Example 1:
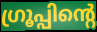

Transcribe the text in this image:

ഗ്രൂപ്പിന്റെ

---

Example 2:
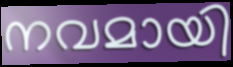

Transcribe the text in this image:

നവമായി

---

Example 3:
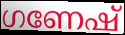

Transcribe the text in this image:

ഗണേഷ്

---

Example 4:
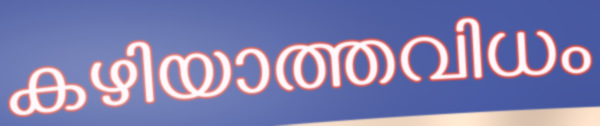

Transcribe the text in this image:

കഴിയാത്തവിധം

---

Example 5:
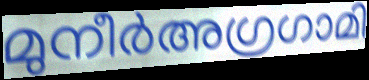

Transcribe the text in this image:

മുനീർഅഗ്രഗാമി